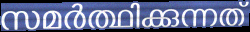
സമർത്ഥിക്കുന്നത്